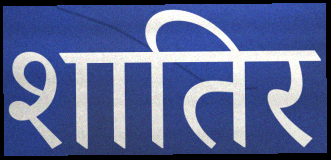
शातिर